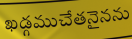
ఖడ్గముచేతనైనను